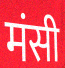
मंसी